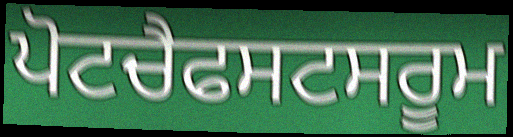
ਪੋਟਚੈਫਸਟਸਰੂਮ